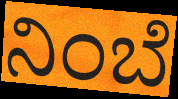
ನಿಂಬೆ